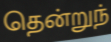
தென்றுந்